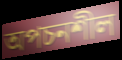
অপচনশীল